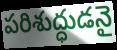
పరిశుద్ధుడనై